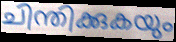
ചിന്തിക്കുകയും